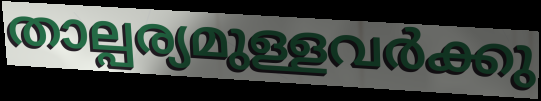
താല്പര്യമുള്ളവർക്കു